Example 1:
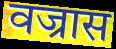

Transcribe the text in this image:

वज्रास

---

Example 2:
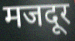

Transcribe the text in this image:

मजदूर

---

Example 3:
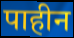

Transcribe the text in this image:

पाहीन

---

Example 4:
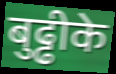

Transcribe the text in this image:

बुढ्ढीके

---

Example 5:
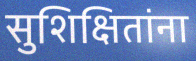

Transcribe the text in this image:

सुशिक्षितांना